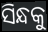
ସିନ୍ଧକୁ